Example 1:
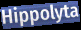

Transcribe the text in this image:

Hippolyta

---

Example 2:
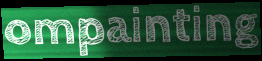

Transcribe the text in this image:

ompainting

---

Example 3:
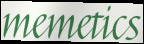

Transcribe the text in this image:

memetics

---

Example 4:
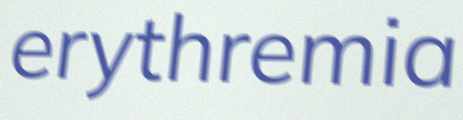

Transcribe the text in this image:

erythremia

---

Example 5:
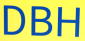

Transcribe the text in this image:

DBH